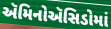
ઍમિનોઍસિડોમાં